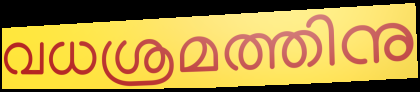
വധശ്രമത്തിനു